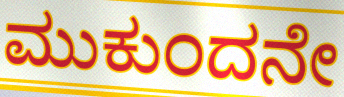
ಮುಕುಂದನೇ